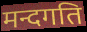
मन्दगति